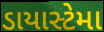
ડાયાસ્ટેમા